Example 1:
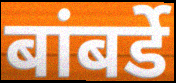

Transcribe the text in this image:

बांबर्डे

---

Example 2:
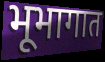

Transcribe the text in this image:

भूभागात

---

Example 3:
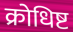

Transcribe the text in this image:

क्रोधिष्ट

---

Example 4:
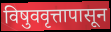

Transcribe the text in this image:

विषुववृत्तापासून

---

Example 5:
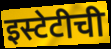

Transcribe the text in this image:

इस्टेटीची